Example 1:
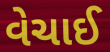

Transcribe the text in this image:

વેચાઈ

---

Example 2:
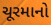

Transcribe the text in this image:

ચૂરમાનો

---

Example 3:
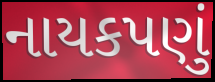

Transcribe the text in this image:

નાયકપણું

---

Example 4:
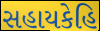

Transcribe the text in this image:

સહાયકેહિ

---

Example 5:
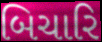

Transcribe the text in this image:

બિચારિ